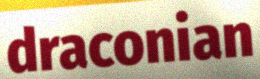
draconian